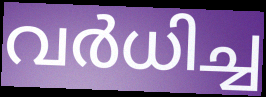
വർധിച്ച